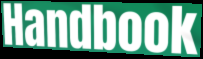
Handbook